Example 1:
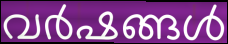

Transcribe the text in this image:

വർഷങ്ങൾ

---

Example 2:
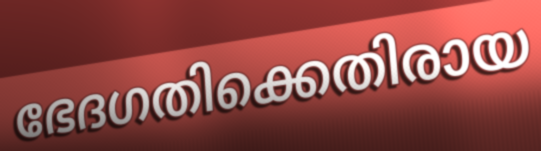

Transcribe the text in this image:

ഭേദഗതിക്കെതിരായ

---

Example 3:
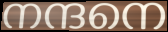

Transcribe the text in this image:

നന്ദനെ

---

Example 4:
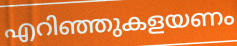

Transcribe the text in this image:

എറിഞ്ഞുകളയണം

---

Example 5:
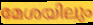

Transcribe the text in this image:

മേശയിലും